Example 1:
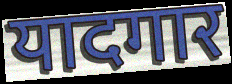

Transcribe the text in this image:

यादगार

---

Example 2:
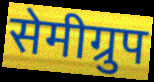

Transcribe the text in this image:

सेमीग्रुप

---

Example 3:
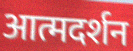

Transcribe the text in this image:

आत्मदर्शन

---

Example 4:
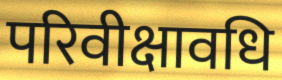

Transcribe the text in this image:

परिवीक्षावधि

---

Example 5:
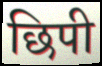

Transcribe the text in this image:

छिपी